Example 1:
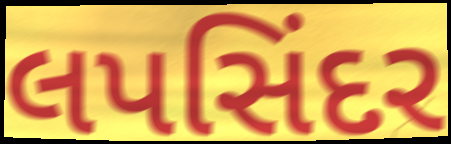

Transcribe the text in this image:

લપસિંદર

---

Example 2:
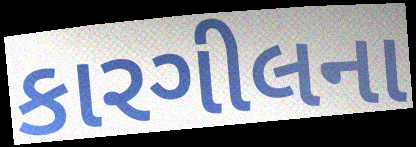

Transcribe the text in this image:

કારગીલના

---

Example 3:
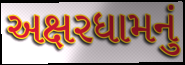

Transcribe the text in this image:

અક્ષરધામનું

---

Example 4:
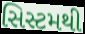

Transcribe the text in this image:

સિસ્ટમથી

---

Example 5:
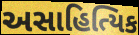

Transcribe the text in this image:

અસાહિત્યિક